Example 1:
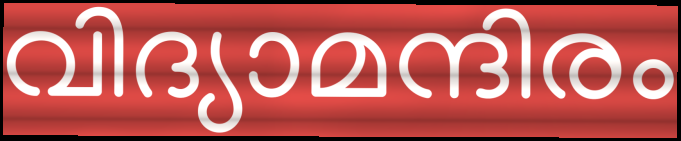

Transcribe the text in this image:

വിദ്യാമന്ദിരം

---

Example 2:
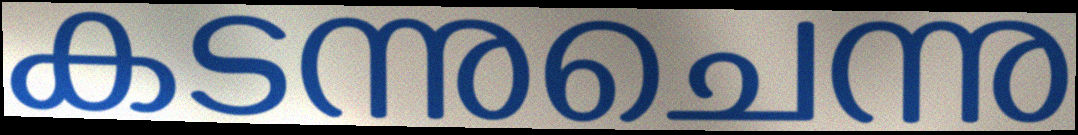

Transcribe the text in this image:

കടന്നുചെന്നു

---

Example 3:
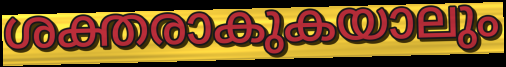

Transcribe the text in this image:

ശക്തരാകുകയാലും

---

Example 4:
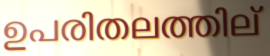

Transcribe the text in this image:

ഉപരിതലത്തില്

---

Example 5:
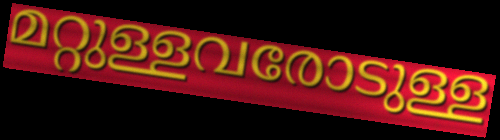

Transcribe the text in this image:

മറ്റുള്ളവരോടുള്ള